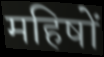
महिषों